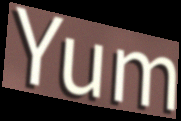
Yum